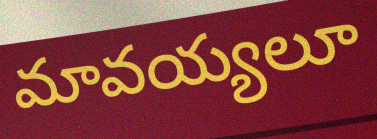
మావయ్యలూ